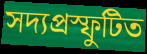
সদ্যপ্রস্ফুটিত